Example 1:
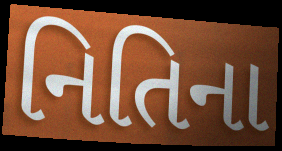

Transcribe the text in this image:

નિતિના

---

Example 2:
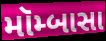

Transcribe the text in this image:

મૉમ્બાસા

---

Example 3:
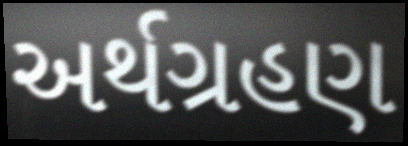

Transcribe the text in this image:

અર્થગ્રહણ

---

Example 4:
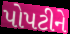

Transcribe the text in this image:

પોપટીને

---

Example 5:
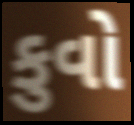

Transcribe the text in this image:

કુવો